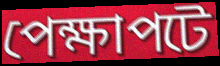
পেক্ষাপটে